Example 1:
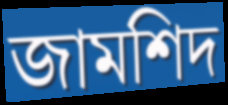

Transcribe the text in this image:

জামশিদ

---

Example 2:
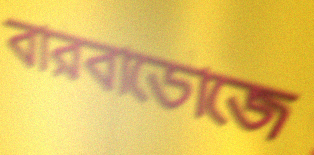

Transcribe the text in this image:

বারবাডোজে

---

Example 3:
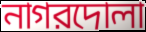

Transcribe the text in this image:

নাগরদোলা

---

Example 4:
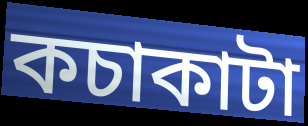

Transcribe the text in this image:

কচাকাটা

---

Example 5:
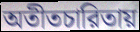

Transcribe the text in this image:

অতীতচারিতায়